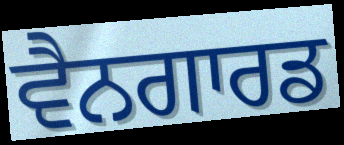
ਵੈਨਗਾਰਡ